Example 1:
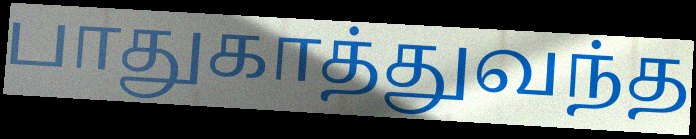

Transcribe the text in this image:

பாதுகாத்துவந்த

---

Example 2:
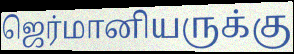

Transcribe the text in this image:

ஜெர்மானியருக்கு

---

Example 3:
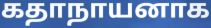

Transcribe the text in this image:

கதாநாயனாக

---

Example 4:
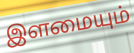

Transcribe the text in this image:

இளமையும்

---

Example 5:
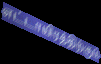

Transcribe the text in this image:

எட்டாயிரத்திற்கும்